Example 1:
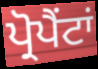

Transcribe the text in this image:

ਪ੍ਰੋਪੈਂਟਾਂ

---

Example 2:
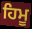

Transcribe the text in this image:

ਹਿਮੂ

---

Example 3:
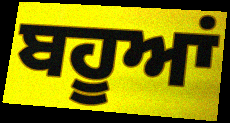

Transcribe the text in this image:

ਬਹੂਆਂ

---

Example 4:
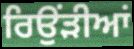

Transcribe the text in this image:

ਰਿਉਂੜੀਆਂ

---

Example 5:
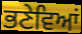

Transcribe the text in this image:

ਭਣੇਵਿਆਂ